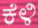
ಕೆಳಿ